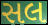
સલ